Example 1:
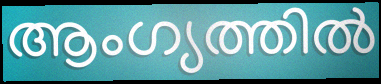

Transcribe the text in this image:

ആംഗ്യത്തിൽ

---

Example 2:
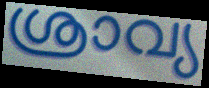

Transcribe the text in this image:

ശ്രാവ്യ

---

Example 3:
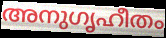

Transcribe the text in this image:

അനുഗൃഹീതം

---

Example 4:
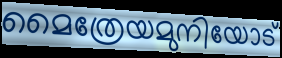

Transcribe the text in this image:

മൈത്രേയമുനിയോട്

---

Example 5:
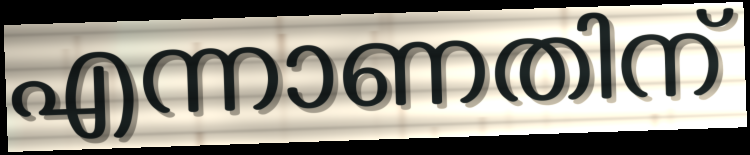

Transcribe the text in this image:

എന്നാണതിന്